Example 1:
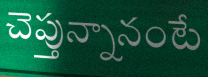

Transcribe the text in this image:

చెప్తున్నానంటే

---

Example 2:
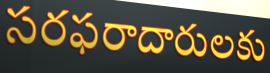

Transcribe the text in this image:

సరఫరాదారులకు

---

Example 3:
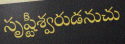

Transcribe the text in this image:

సృష్టీశ్వరుడనుచు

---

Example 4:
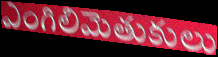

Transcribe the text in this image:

ఎంగిలిమెతుకులు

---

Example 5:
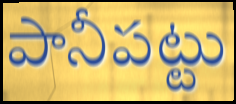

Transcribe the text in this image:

పానీపట్టు